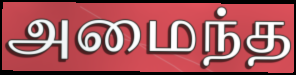
அமைந்த